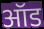
ऑड